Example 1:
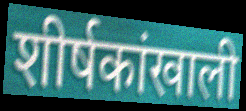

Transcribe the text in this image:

शीर्षकांखाली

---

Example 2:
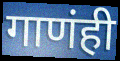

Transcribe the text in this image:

गाणंही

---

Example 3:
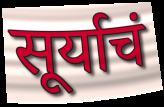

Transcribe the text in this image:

सूर्याचं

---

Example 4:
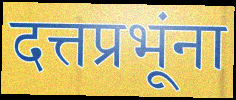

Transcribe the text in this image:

दत्तप्रभूंना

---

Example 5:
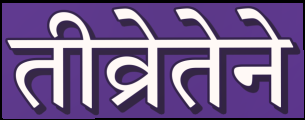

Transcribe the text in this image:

तीव्रेतेने